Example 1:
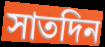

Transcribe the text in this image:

সাতদিন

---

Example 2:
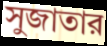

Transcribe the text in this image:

সুজাতার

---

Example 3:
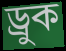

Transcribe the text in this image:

ড্রুক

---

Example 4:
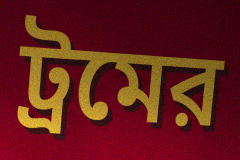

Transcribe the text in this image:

ট্রমের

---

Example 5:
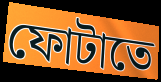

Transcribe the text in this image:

ফোটাতে